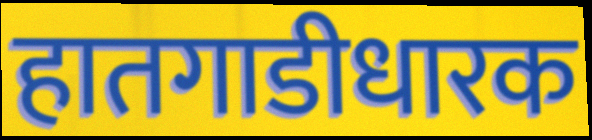
हातगाडीधारक